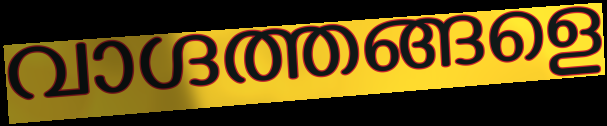
വാഗ്ദത്തങ്ങളെ